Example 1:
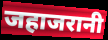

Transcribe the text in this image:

जहाजरानी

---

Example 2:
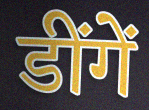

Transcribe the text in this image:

डींगें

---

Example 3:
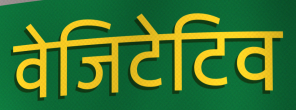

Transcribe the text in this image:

वेजिटेटिव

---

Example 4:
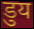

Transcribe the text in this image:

डुय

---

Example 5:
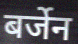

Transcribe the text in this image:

बर्जेन